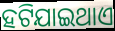
ହଟିଯାଇଥାଏ